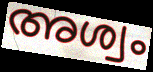
അശ്വം